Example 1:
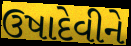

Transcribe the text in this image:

ઉષાદેવીને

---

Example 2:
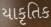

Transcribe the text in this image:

યાકૃતિક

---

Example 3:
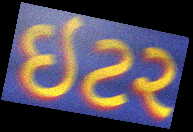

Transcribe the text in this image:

ઇટર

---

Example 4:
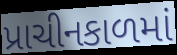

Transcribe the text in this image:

પ્રાચીનકાળમાં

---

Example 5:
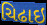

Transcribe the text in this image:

ચિઢાઇ